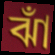
ঝাঁ